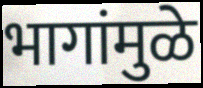
भागांमुळे